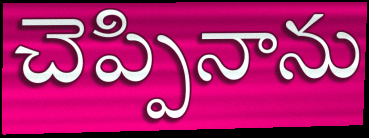
చెప్పినాను